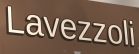
Lavezzoli